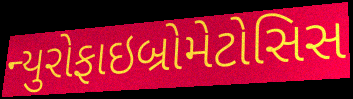
ન્યુરોફાઇબ્રોમેટોસિસ